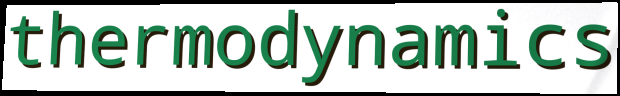
thermodynamics